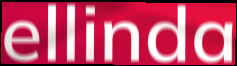
ellinda